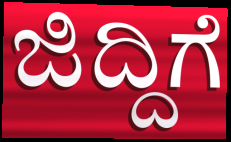
ಜಿದ್ದಿಗೆ